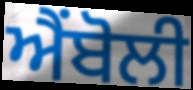
ਐਂਬੋਲੀ